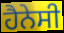
ਹੈਨੇਸੀ